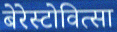
बेरेस्टोवित्सा